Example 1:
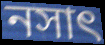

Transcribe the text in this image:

নসাৎ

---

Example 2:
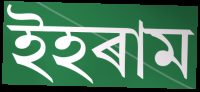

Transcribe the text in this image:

ইহৰাম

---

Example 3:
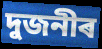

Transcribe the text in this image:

দুজনীৰ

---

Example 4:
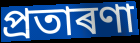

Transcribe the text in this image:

প্ৰতাৰণা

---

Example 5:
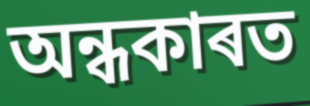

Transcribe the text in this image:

অন্ধকাৰত